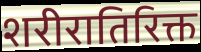
शरीरातिरिक्त